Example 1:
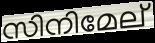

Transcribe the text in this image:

സിനിമേല്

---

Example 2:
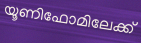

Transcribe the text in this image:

യൂണിഫോമിലേക്ക്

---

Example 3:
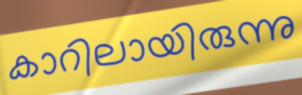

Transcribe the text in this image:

കാറിലായിരുന്നു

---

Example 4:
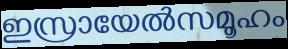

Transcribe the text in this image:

ഇസ്രായേൽസമൂഹം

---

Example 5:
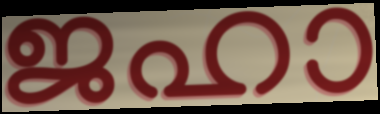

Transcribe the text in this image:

ജഹാ